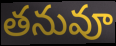
తనువూ